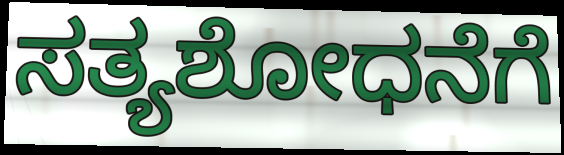
ಸತ್ಯಶೋಧನೆಗೆ